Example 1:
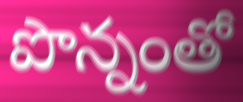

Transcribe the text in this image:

పొన్నంతో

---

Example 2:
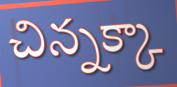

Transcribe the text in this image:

చిన్నక్కా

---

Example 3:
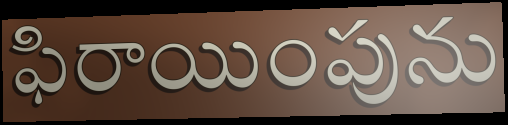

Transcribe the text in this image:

ఫిరాయింపును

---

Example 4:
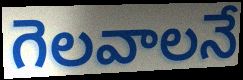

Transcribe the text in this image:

గెలవాలనే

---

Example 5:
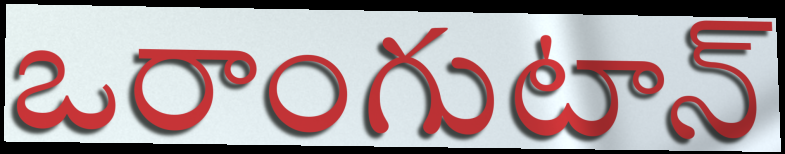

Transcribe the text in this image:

ఒరాంగుటాన్